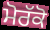
ਮੋਰੱਕੋ